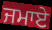
ਜਮਾਏ